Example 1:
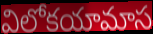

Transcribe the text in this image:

విలోకయామాస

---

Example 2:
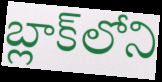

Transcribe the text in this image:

బ్లాక్‌లోని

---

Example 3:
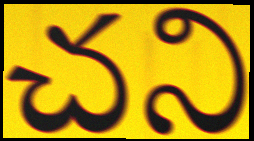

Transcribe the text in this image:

చని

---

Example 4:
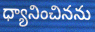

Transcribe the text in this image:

ధ్యానించినను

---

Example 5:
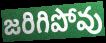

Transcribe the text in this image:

జరిగిపోవు